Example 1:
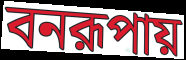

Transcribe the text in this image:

বনরূপায়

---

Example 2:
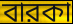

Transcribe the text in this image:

বারকা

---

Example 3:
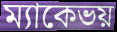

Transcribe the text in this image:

ম্যাকেভয়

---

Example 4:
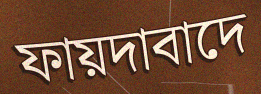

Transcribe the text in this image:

ফায়দাবাদে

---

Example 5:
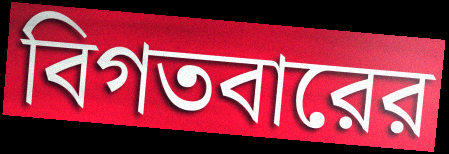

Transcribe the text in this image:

বিগতবারের